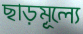
ছাড়মূল্যে